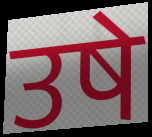
उषे